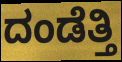
ದಂಡೆತ್ತಿ